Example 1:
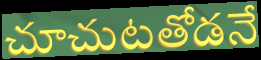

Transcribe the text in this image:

చూచుటతోడనే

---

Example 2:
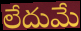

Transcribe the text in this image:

లేదుమే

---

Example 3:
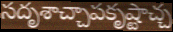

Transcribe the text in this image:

సదృశాచ్చాపకృష్టాచ్చ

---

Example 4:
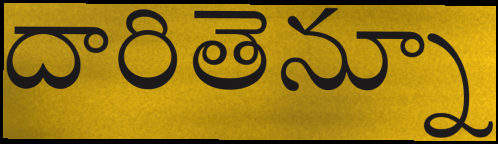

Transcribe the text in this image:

దారితెన్నూ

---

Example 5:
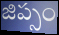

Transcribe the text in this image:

జిప్సం